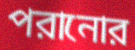
পরানোর